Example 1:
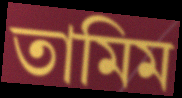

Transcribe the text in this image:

তামিম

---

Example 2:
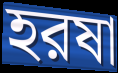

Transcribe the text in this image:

হরষা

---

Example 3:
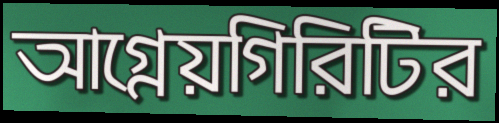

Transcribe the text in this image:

আগ্নেয়গিরিটির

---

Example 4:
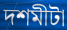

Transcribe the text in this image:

দশমীটা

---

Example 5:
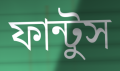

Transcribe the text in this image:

ফান্টুস